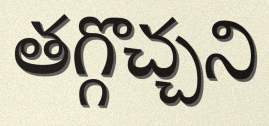
తగ్గొచ్చని